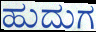
ಹುದುಗ